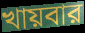
খায়বার